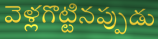
వెళ్లగొట్టినప్పుడు